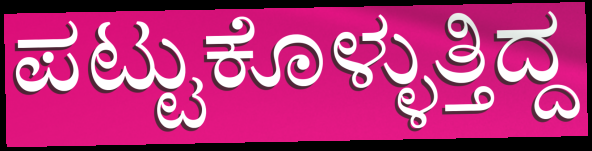
ಪಟ್ಟುಕೊಳ್ಳುತ್ತಿದ್ದ